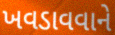
ખવડાવવાને